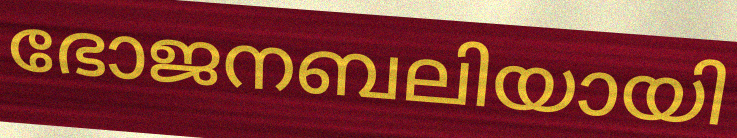
ഭോജനബലിയായി